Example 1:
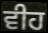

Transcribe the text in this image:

ਵੀਹ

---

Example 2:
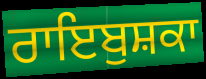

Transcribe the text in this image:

ਰਾਇਬੁਸ਼ਕਾ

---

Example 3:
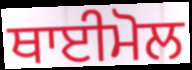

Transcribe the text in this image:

ਥਾਈਮੋਲ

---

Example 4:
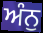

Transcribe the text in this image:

ਅੰਨੁ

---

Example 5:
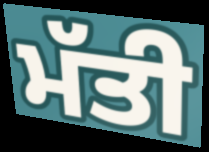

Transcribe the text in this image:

ਮੱਤੀ